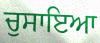
ਚੁਸਾਇਆ